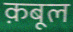
क़बूल